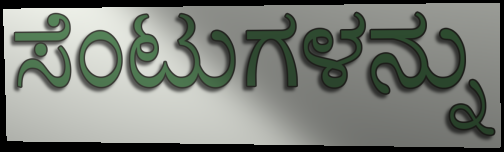
ಸೆಂಟುಗಳನ್ನು